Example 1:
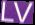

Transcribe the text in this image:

LV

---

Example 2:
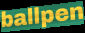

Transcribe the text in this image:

ballpen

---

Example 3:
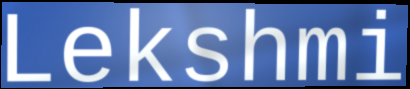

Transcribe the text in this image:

Lekshmi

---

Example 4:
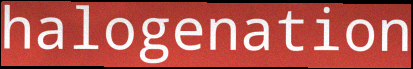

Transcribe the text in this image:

halogenation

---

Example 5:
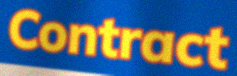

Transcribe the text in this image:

Contract